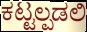
ಕಟ್ಟಲ್ಪಡಲಿ